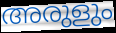
അരുളും